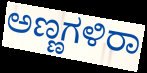
ಅಣ್ಣಗಳಿರಾ